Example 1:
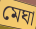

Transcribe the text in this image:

মেঘা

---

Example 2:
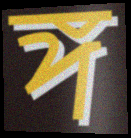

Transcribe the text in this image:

ঙ্গ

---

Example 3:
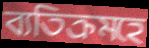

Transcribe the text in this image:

ব্যতিক্ৰমহে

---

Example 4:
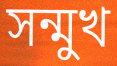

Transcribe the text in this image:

সন্মুখ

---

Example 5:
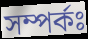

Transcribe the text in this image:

সম্পৰ্কঃ